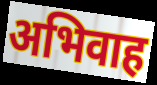
अभिवाह